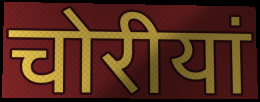
चोरीयां